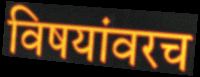
विषयांवरच